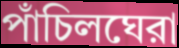
পাঁচিলঘেরা